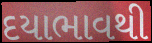
દયાભાવથી